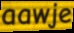
aawje